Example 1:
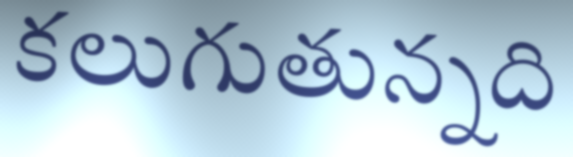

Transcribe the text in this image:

కలుగుతున్నది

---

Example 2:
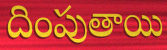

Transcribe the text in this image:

దింపుతాయి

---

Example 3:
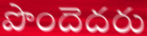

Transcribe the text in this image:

పొందెదరు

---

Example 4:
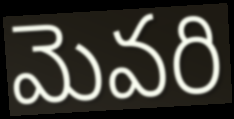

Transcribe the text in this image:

మెవరి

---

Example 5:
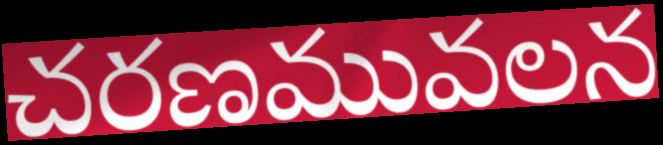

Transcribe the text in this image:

చరణమువలన